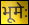
भूमेः